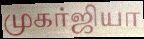
முகர்ஜியா